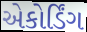
એકોર્ડિંગ